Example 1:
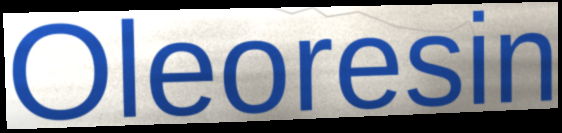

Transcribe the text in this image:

Oleoresin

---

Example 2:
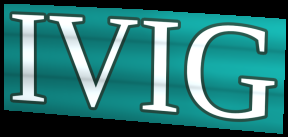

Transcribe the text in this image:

IVIG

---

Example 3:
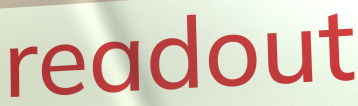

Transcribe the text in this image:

readout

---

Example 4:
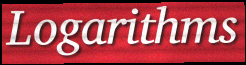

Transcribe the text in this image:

Logarithms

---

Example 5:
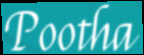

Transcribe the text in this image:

Pootha